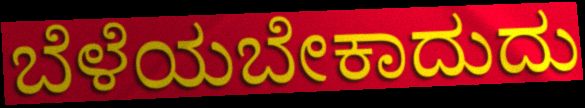
ಬೆಳೆಯಬೇಕಾದುದು